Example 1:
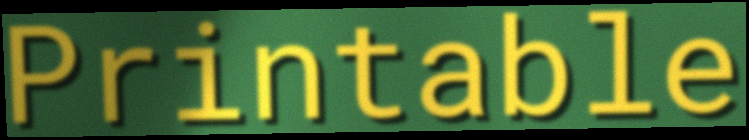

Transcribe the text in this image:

Printable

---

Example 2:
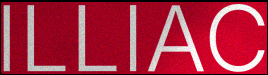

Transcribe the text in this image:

ILLIAC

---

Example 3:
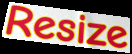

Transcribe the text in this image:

Resize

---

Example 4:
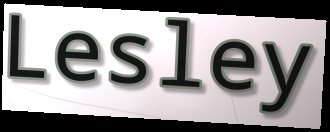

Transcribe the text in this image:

Lesley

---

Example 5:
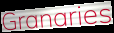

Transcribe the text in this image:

Granaries